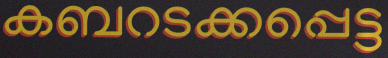
കബറടക്കപ്പെട്ട